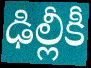
ఢిల్లీకీ